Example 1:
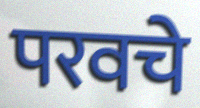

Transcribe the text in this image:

परवचे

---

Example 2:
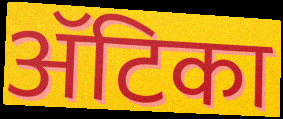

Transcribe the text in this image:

ॲटिका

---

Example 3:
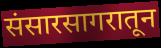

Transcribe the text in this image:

संसारसागरातून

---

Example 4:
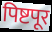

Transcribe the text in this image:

पिष्टपूर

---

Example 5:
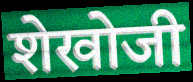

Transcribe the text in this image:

शेखोजी